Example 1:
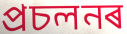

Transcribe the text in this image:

প্ৰচলনৰ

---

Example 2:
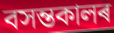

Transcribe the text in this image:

বসন্তকালৰ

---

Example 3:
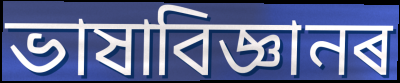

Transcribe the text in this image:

ভাষাবিজ্ঞানৰ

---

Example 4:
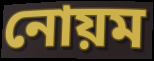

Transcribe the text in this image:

নোয়ম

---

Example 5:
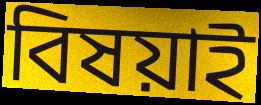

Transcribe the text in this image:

বিষয়াই